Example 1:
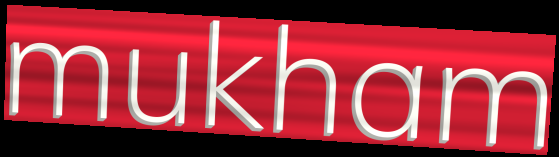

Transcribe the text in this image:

mukham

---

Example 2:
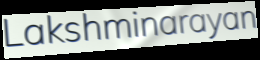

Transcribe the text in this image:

Lakshminarayan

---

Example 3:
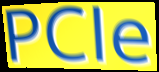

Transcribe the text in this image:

PCIe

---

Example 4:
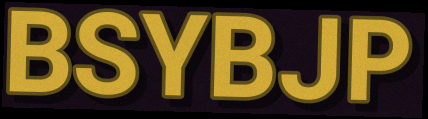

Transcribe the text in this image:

BSYBJP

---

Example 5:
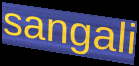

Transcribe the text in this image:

sangali